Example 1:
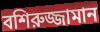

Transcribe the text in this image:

বশিরুজ্জামান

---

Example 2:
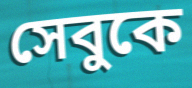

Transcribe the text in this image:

সেবুকে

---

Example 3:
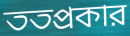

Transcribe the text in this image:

ততপ্রকার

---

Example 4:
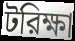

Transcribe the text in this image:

টরিক্ষা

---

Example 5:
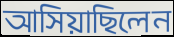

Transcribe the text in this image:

আসিয়াছিলেন